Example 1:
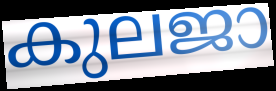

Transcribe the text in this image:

കുലജാ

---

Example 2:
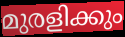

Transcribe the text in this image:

മുരളിക്കും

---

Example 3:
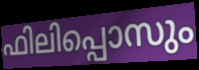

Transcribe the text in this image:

ഫിലിപ്പൊസും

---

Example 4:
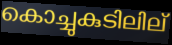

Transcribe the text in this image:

കൊച്ചുകുടിലില്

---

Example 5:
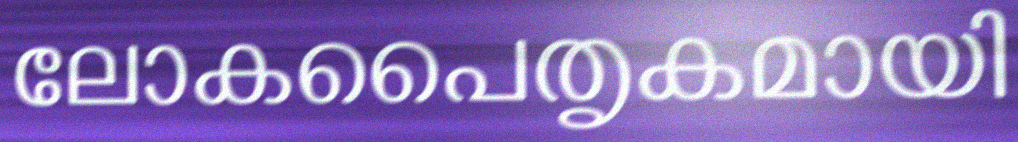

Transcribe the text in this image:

ലോകപൈതൃകമായി